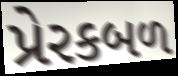
પ્રેરકબળ